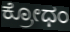
ಕ್ರೋಧಂ